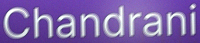
Chandrani